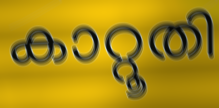
കാറ്റൂതി